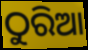
ଠୁରିଆ